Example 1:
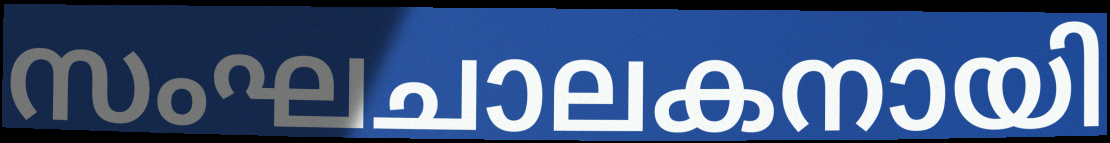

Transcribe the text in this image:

സംഘചാലകനായി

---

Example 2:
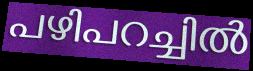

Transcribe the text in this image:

പഴിപറച്ചിൽ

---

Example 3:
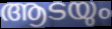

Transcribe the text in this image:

ആടയും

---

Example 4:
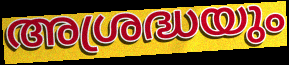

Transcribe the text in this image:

അശ്രദ്ധയും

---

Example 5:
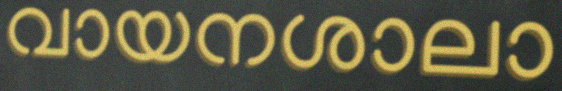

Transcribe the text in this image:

വായനശാലാ